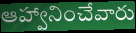
ఆహ్వానించేవారు